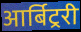
आर्बिट्ररी